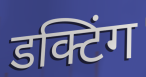
डक्टिंग